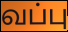
வப்பு